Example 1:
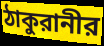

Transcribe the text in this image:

ঠাকুরানীর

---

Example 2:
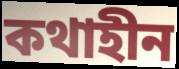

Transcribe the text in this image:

কথাহীন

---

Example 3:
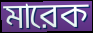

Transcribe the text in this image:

মারেক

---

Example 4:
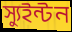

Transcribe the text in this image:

স্যুইন্টন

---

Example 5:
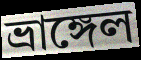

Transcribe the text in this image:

ভ্রাঙ্গেল